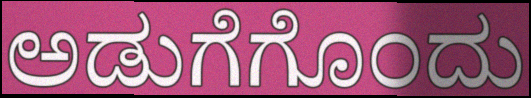
ಅಡುಗೆಗೊಂದು